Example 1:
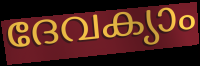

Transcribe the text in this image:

ദേവക്യാം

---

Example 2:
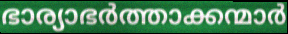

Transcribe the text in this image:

ഭാര്യാഭർത്താക്കന്മാർ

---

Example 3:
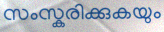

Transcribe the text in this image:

സംസ്കരിക്കുകയും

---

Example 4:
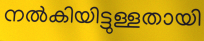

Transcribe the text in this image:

നൽകിയിട്ടുള്ളതായി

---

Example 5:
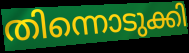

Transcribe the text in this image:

തിന്നൊടുക്കി